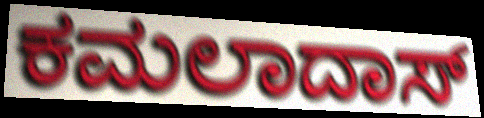
ಕಮಲಾದಾಸ್